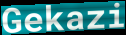
Gekazi